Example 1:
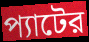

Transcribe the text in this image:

প্যাটের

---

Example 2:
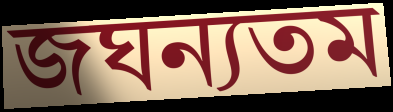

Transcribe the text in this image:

জঘন্যতম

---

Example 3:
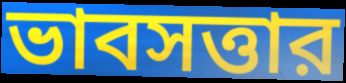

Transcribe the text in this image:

ভাবসত্তার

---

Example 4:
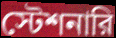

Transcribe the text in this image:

স্টেশনারি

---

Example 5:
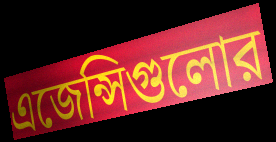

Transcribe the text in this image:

এজেন্সিগুলোর